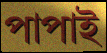
পাপাই